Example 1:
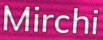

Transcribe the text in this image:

Mirchi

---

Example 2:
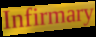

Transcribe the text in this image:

Infirmary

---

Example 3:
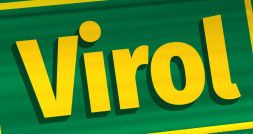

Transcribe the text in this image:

Virol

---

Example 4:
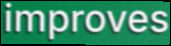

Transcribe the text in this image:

improves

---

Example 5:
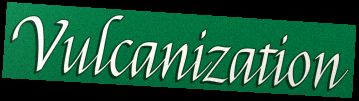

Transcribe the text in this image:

Vulcanization